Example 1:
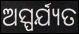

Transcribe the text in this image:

ଅସ୍ପର୍ଯ୍ୟତ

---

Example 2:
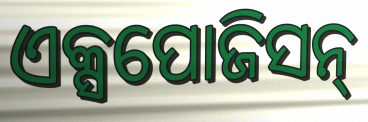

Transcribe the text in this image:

ଏକ୍ସପୋଜିସନ୍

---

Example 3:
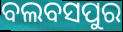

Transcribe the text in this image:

ବଲବସପୁର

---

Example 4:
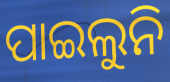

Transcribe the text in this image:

ପାଇଲୁନି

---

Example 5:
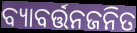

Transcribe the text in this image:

ବ୍ୟାବର୍ତ୍ତନଜନିତ